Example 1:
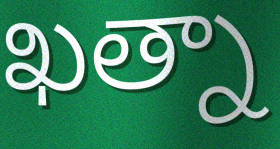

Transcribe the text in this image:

ఖత్నా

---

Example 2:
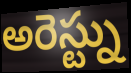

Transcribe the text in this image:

అరెస్ట్ను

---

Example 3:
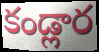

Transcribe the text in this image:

కండ్లార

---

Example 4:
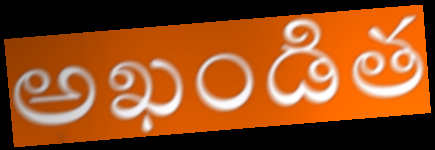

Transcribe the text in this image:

అఖండిత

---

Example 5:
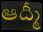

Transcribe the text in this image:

ఆద్మీ